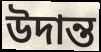
উদান্ত